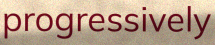
progressively